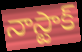
నాస్టాక్